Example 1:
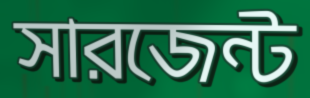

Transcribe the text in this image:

সারজেন্ট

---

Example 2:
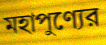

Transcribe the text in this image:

মহাপুণ্যের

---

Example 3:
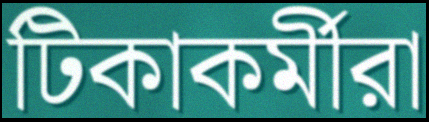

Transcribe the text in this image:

টিকাকর্মীরা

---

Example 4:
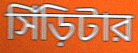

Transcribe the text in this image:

সিঁড়িটার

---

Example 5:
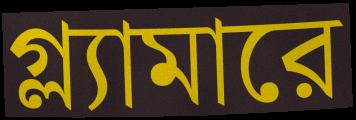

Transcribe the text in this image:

গ্ল্যামারে